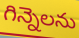
గిన్నెలను